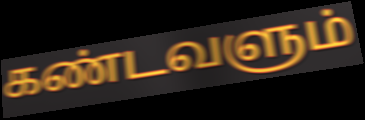
கண்டவளும்